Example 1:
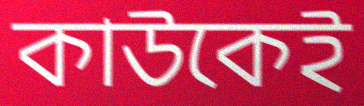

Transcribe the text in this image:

কাউকেই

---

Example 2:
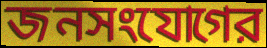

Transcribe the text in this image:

জনসংযোগের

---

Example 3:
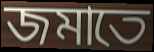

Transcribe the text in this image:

জমাতে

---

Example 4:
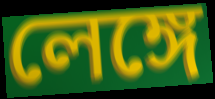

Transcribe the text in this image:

লেঙ্গে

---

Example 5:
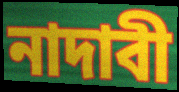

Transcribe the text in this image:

নাদাবী